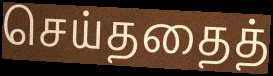
செய்ததைத்